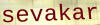
sevakar